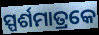
ସ୍ପର୍ଶମାତ୍ରକେ